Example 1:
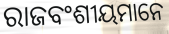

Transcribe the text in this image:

ରାଜବଂଶୀୟମାନେ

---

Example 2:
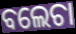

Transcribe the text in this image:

ବଲେଚା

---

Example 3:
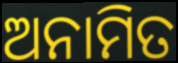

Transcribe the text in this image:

ଅନାମିତ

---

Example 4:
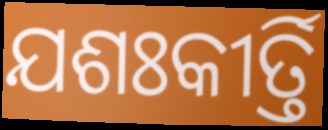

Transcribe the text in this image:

ଯଶଃକୀର୍ତ୍ତି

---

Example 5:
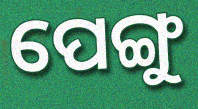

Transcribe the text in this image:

ପେଙ୍ଗୁ